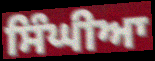
ਸਿੰਘੀਆ